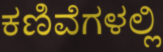
ಕಣಿವೆಗಳಲ್ಲಿ